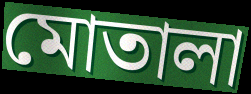
মোতালা